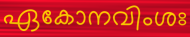
ഏകോനവിംശഃ